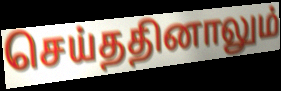
செய்ததினாலும்